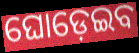
ଘୋଡ଼େଇବ